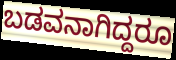
ಬಡವನಾಗಿದ್ದರೂ